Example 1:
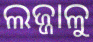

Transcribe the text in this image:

ଲଜ୍ଜାଳୁ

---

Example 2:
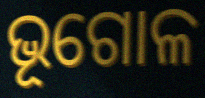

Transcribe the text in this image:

ଭୂଗୋଳ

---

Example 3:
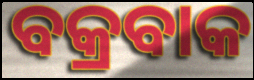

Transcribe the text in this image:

ବକ୍ରବାକ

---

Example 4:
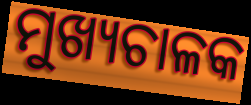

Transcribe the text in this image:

ମୁଖ୍ୟଚାଳକ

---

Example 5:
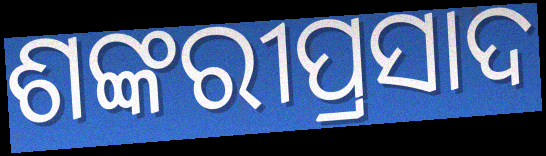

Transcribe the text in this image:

ଶଙ୍କରୀପ୍ରସାଦ